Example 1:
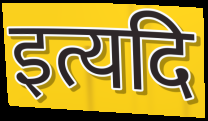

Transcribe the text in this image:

इत्यदि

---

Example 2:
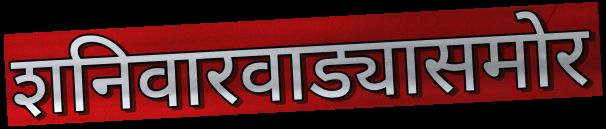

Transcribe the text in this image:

शनिवारवाड्यासमोर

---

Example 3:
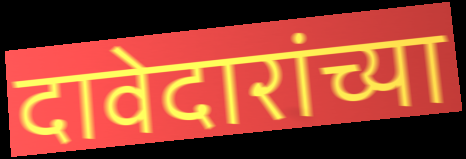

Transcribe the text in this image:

दावेदारांच्या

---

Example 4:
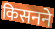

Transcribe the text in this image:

किसनने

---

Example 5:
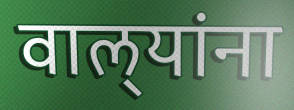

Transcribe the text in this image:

वाल्यांना